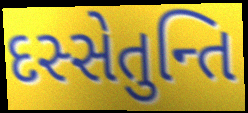
દસ્સેતુન્તિ